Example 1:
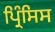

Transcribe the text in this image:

ਪ੍ਰਿੰਸਿਸ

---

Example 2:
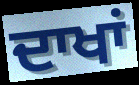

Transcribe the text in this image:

ਦਾਖਾਂ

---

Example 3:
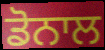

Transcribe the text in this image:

ਡੋਨਾਲ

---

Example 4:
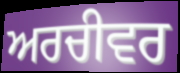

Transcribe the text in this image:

ਅਰਚੀਵਰ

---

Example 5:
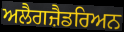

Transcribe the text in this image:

ਅਲੈਗਜ਼ੈਡਰਿਅਨ